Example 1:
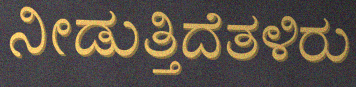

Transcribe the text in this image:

ನೀಡುತ್ತಿದೆತಳಿರು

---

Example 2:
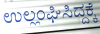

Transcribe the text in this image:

ಉಲ್ಲಂಘಿಸಿದ್ದಕ್ಕೆ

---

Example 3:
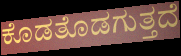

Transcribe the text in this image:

ಕೊಡತೊಡಗುತ್ತದೆ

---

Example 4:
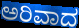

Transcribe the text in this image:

ಅರಿವಾದ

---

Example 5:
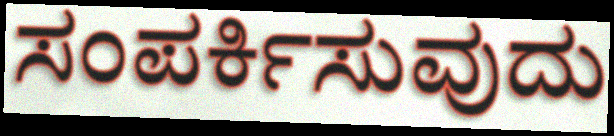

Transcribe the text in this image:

ಸಂಪರ್ಕಿಸುವುದು